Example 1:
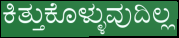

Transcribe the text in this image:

ಕಿತ್ತುಕೊಳ್ಳುವುದಿಲ್ಲ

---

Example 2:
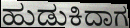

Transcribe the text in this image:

ಹುಡುಕಿದಾಗ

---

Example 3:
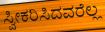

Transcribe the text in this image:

ಸ್ವೀಕರಿಸಿದವರೆಲ್ಲ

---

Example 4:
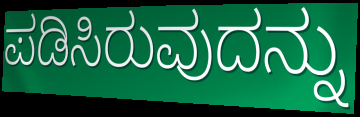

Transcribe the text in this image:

ಪಡಿಸಿರುವುದನ್ನು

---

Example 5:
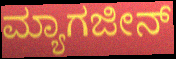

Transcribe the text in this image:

ಮ್ಯಾಗಜೀನ್